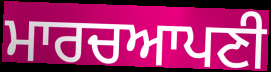
ਮਾਰਚਆਪਣੀ